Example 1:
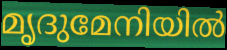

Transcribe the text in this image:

മൃദുമേനിയിൽ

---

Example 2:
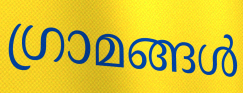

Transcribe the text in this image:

ഗ്രാമങ്ങൾ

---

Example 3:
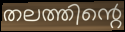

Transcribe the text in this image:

തലത്തിന്റെ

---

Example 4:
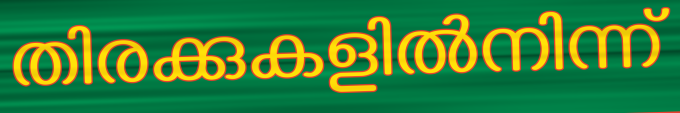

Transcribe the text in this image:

തിരക്കുകളിൽനിന്ന്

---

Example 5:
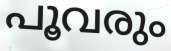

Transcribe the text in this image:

പൂവരും